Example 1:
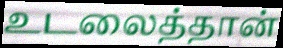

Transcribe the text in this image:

உடலைத்தான்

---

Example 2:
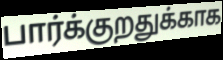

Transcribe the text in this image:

பார்க்குறதுக்காக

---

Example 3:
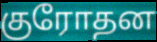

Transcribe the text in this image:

குரோதன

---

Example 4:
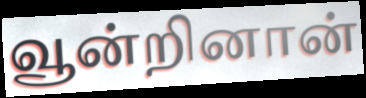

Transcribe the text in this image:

வூன்றினான்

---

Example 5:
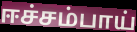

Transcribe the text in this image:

ஈச்சம்பாய்